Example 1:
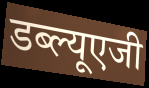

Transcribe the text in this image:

डब्ल्यूएजी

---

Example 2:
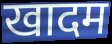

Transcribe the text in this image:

खादम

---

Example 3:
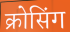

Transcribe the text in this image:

क्रोसिंग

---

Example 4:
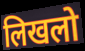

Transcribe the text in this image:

लिखलो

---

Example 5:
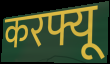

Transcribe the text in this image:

करफ्यू